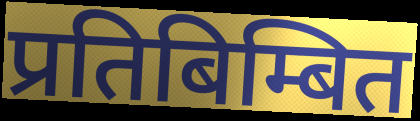
प्रतिबिम्बित